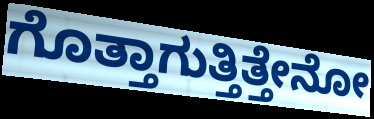
ಗೊತ್ತಾಗುತ್ತಿತ್ತೇನೋ